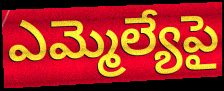
ఎమ్మెల్యేపై